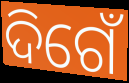
ଦିଗେଁ